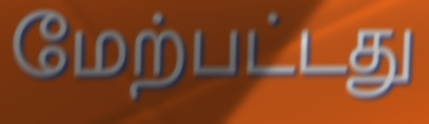
மேற்பட்டது